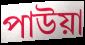
পাউয়া